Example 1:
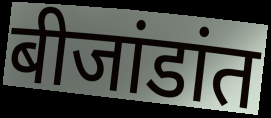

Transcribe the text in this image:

बीजांडांत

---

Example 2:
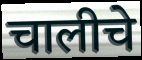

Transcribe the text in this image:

चालीचे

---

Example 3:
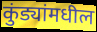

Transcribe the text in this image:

कुंड्यांमधील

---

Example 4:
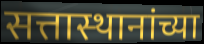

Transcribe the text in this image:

सत्तास्थानांच्या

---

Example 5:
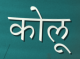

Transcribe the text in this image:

कोलू